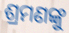
ଶ୍ରମଣଙ୍କୁ